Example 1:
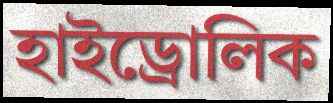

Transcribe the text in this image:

হাইড্রোলিক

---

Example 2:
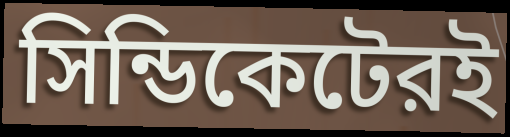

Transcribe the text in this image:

সিন্ডিকেটেরই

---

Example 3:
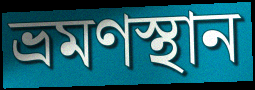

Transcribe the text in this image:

ভ্রমণস্থান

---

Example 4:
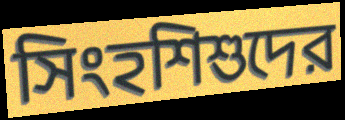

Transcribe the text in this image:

সিংহশিশুদের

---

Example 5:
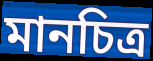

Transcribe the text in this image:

মানচিত্র